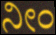
ನೀಂ